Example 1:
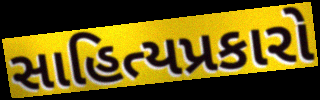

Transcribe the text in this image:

સાહિત્યપ્રકારો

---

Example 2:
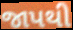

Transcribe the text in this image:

જાપથી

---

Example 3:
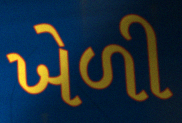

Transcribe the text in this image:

ખેળી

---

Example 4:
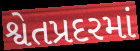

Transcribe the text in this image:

શ્વેતપ્રદરમાં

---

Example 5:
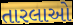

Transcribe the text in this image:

તારલાઓ